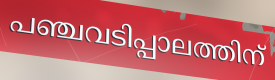
പഞ്ചവടിപ്പാലത്തിന്